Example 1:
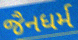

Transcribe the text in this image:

જૈનધર્મ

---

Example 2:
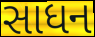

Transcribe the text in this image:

સાધન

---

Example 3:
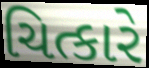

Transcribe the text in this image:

ચિત્કારે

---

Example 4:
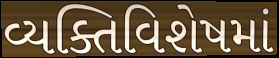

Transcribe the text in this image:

વ્યક્તિવિશેષમાં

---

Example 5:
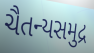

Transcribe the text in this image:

ચૈતન્યસમુદ્ર